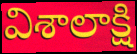
విశాలాక్షి